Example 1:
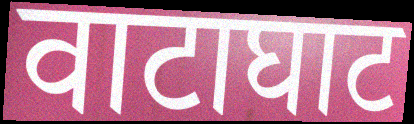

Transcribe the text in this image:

वाटाघाट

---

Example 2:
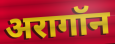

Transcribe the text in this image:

अरागॉन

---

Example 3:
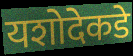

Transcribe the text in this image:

यशोदेकडे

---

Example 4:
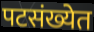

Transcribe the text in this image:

पटसंख्येत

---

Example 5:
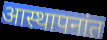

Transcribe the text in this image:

आस्थापनांत